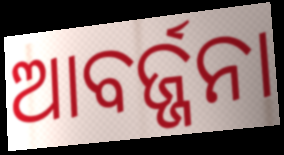
ଆବର୍ଜ୍ଜନା